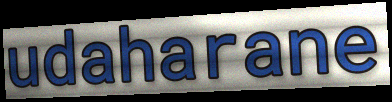
udaharane